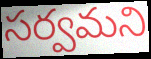
సర్వమని